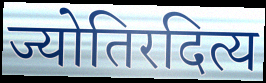
ज्योतिरदित्य